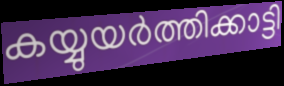
കയ്യുയർത്തിക്കാട്ടി